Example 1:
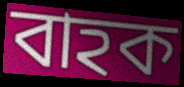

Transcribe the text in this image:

বাহক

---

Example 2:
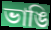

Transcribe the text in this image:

ভাঙি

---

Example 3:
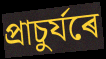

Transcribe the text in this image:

প্ৰাচুৰ্যৰে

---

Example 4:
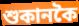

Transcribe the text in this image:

শুকানকৈ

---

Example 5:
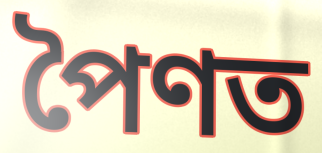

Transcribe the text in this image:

পৈণত